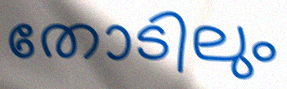
തോടിലും